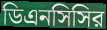
ডিএনসিসির